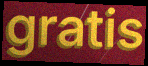
gratis